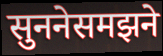
सुननेसमझने